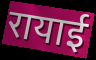
रायाई